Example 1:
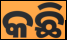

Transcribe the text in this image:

କଛି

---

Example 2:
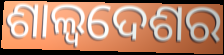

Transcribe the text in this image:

ଶାଲ୍ୱଦେଶର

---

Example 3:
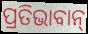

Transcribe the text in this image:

ପ୍ରତିଭାବାନ୍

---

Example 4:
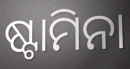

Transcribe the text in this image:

ଷ୍ଟାମିନା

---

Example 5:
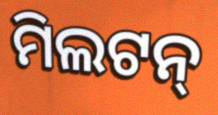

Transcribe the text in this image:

ମିଲଟନ୍